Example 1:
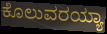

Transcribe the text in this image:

ಕೊಲುವರಯ್ಯಾ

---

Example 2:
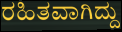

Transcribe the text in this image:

ರಹಿತವಾಗಿದ್ದು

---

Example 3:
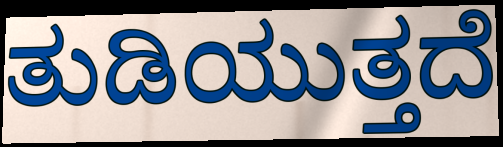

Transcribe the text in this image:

ತುಡಿಯುತ್ತದೆ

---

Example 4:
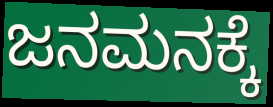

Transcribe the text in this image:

ಜನಮನಕ್ಕೆ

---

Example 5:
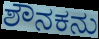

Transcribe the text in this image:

ಶೌನಕನು